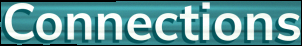
Connections